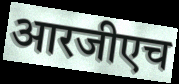
आरजीएच